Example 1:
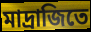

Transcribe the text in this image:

মাদ্রাজিতে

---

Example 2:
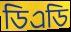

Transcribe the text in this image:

ডিএডি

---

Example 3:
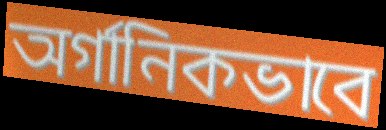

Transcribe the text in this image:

অর্গানিকভাবে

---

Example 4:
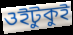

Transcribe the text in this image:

ওইটুকুই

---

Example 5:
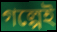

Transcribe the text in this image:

গল্পেই